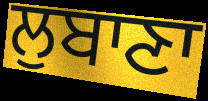
ਲੁਬਾਣਾ